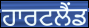
ਹਾਰਟਲੈਂਡ